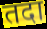
तदा